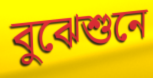
বুঝেশুনে